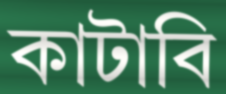
কাটাবি